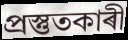
প্ৰস্তুতকাৰী